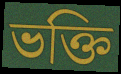
ভক্তি